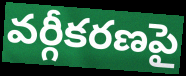
వర్గీకరణపై